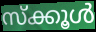
സ്ക്കൂൾ